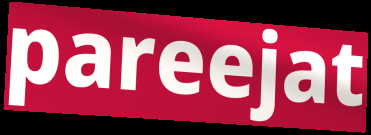
pareejat